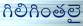
గిలిగింతలై